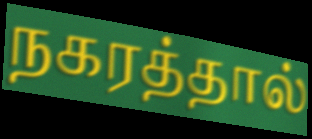
நகரத்தால்